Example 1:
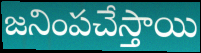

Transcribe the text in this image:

జనింపచేస్తాయి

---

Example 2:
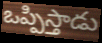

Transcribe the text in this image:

ఒప్పిస్తాడు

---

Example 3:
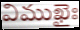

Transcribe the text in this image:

విముఖైః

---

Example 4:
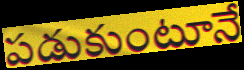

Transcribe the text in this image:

పడుకుంటూనే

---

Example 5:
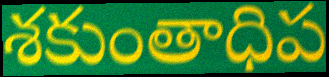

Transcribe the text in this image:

శకుంతాధిప